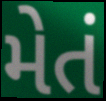
મેતં